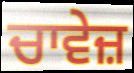
ਚਾਵੇਜ਼